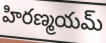
హిరణ్మయమ్